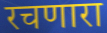
रचणारा